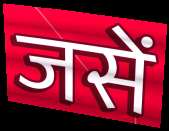
जसें